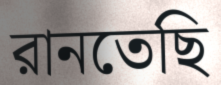
রানতেছি